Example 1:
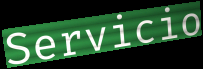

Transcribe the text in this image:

Servicio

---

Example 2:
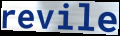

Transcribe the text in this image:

revile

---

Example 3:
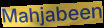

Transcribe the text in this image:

Mahjabeen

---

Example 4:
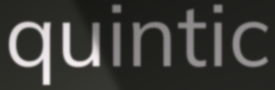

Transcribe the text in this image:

quintic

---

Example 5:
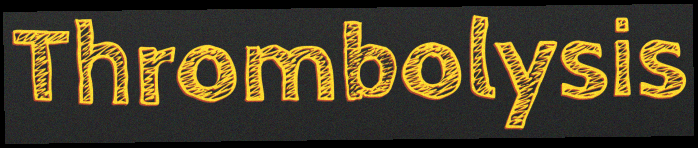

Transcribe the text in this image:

Thrombolysis